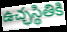
ఉచ్ఛస్థితికి